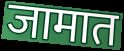
जामात